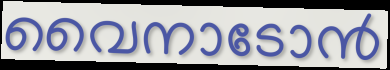
വൈനാടോൻ